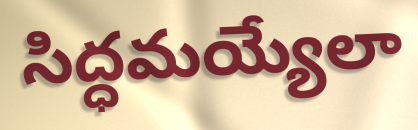
సిద్ధమయ్యేలా